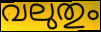
വലുതും